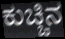
ಕುಚ್ಚಿನ